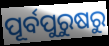
ପୂର୍ବପୁରୁଷରୁ